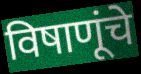
विषाणूंचे